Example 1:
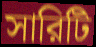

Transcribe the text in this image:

সারিটি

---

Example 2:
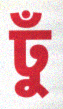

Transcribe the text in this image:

ঢুঁ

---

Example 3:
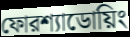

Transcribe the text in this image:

ফোরশ্যাডোয়িং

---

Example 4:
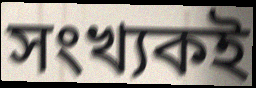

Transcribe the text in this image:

সংখ্যকই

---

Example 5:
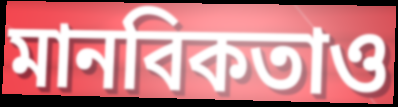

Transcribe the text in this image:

মানবিকতাও